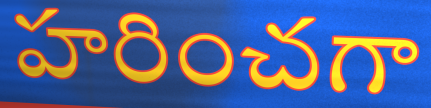
హరించగా